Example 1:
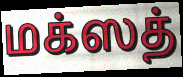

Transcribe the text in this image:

மக்ஸத்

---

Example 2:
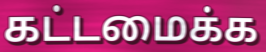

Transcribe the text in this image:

கட்டமைக்க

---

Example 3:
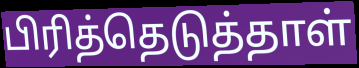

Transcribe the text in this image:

பிரித்தெடுத்தாள்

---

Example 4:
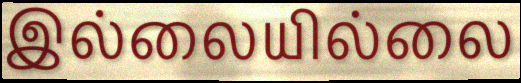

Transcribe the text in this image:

இல்லையில்லை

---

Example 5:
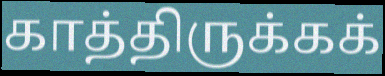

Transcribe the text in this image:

காத்திருக்கக்